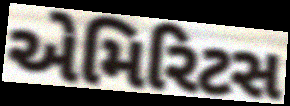
એમિરિટસ